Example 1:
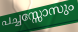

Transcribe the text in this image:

പച്ചസ്സോസും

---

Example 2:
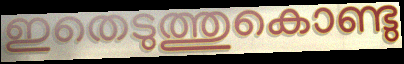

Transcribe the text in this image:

ഇതെടുത്തുകൊണ്ടു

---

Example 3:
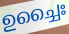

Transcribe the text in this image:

ഉച്ചൈഃ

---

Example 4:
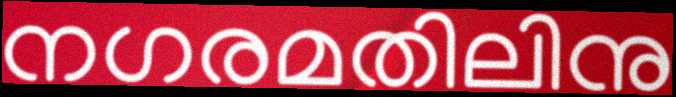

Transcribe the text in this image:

നഗരമതിലിനു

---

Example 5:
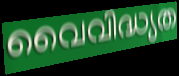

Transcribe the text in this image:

വൈവിദ്ധ്യത